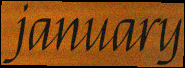
january